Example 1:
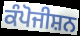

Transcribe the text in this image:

ਕੰਪੋਜੀਸ਼ਨ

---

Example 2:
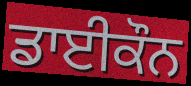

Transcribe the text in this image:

ਡਾਈਕੌਨ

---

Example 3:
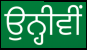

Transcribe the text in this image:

ਉਨ੍ਹੀਵੀਂ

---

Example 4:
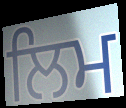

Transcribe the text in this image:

ਲਿਮ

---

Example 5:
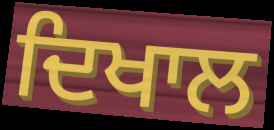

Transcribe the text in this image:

ਦਿਖਾਲ